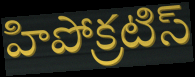
హిపోక్రటిస్